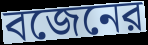
বজেনের